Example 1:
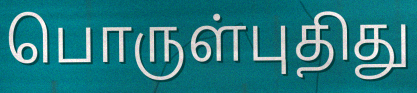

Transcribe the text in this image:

பொருள்புதிது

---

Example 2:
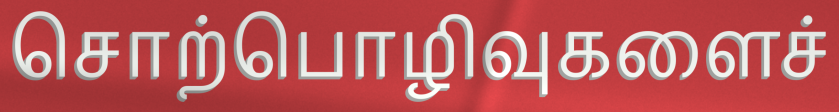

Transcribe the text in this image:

சொற்பொழிவுகளைச்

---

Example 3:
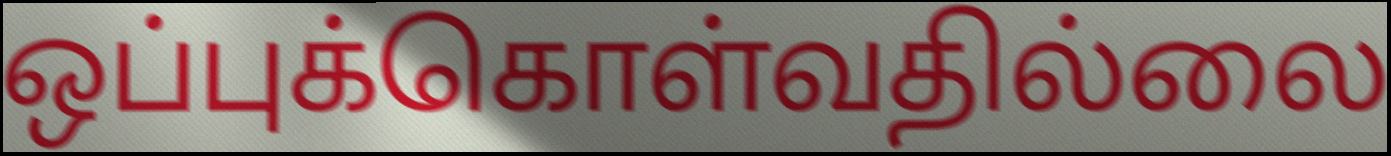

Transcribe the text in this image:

ஒப்புக்கொள்வதில்லை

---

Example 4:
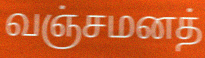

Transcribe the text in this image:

வஞ்சமனத்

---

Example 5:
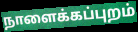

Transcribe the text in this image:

நாளைக்கப்புறம்